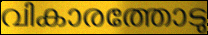
വികാരത്തോടു